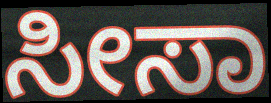
ಸೀಸಾ